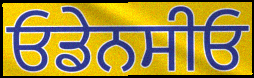
ਓਡੇਨਸੀਓ